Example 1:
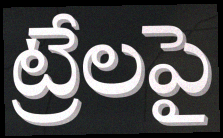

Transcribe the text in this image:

ట్రేలపై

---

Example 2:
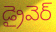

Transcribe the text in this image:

డ్రైవెర్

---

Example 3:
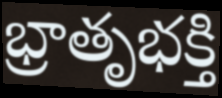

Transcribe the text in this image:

భ్రాతృభక్తి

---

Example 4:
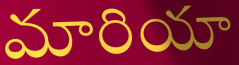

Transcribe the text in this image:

మారియా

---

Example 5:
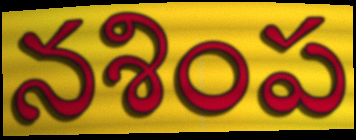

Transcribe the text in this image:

నశింప